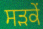
ਸੜਕੇਂ